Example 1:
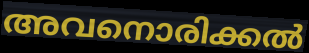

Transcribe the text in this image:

അവനൊരിക്കൽ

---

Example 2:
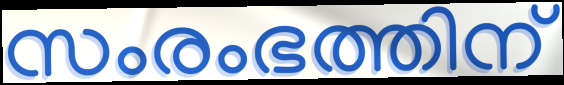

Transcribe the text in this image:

സംരംഭത്തിന്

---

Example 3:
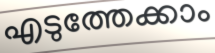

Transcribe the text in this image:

എടുത്തേക്കാം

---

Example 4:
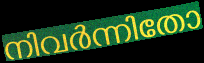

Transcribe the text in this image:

നിവർന്നിതോ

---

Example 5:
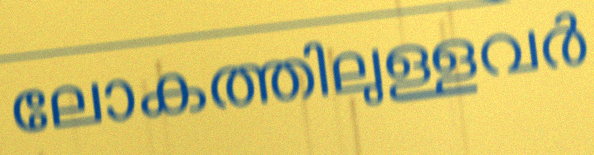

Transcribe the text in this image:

ലോകത്തിലുള്ളവർ